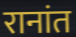
रानांत